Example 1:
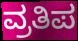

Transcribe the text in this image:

ವ್ರತಿಪ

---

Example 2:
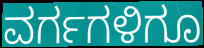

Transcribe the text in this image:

ವರ್ಗಗಳಿಗೂ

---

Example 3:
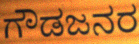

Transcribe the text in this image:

ಗೌಡಜನರ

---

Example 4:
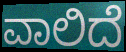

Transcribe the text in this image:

ವಾಲಿದೆ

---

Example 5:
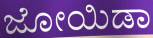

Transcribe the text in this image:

ಜೋಯಿಡಾ